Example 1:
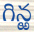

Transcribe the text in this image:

గిన్ఱ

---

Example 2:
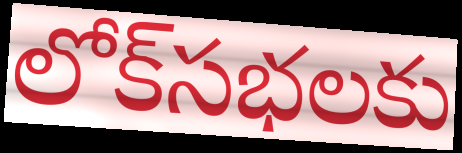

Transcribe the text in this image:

లోక్‌సభలకు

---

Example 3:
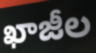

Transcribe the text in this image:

ఖాజీల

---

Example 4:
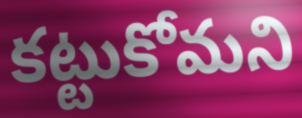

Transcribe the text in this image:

కట్టుకోమని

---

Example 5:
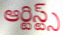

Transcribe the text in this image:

ఆర్టిస్ట్స్